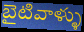
బైటివాళ్ళు